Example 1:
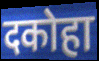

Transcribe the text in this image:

दकोहा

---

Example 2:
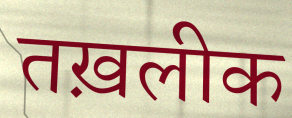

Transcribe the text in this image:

तख़लीक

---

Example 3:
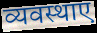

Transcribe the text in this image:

व्यवस्थाए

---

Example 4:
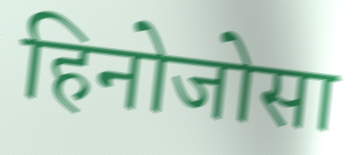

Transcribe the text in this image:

हिनोजोसा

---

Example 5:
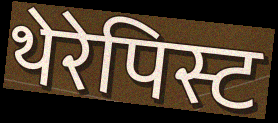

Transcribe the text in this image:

थेरेपिस्ट